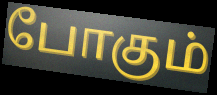
போகும்